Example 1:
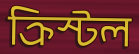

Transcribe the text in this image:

ক্রিস্টল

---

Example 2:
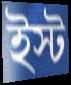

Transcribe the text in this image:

ইস্ট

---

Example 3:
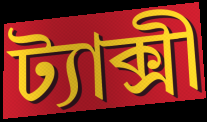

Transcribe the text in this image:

ট্যাক্সী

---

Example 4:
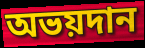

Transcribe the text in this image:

অভয়দান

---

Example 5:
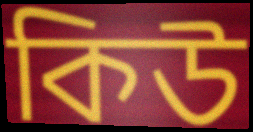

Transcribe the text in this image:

কিউ